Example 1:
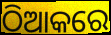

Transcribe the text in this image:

ଠିଆକରେ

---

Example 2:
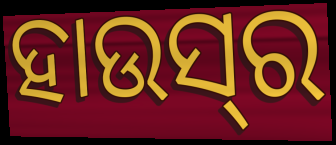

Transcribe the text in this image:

ହାଉସ୍‌ର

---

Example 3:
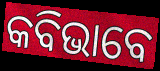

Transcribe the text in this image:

କବିଭାବେ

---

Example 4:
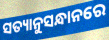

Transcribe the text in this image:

ସତ୍ୟାନୁସନ୍ଧାନରେ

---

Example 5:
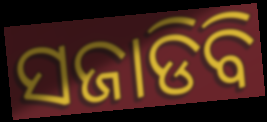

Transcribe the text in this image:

ସଜାଡିବି